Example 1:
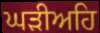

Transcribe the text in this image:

ਘੜੀਅਹਿ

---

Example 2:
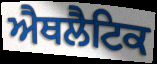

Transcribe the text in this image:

ਐਥਲੈਟਿਕ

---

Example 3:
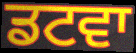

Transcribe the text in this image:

ਡਟਵਾ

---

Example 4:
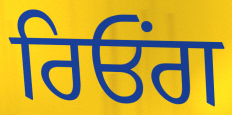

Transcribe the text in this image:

ਰਿਓਂਗ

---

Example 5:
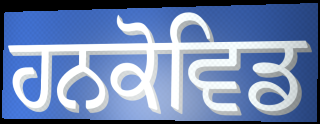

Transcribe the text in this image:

ਹਨਕੋਵਿਡ